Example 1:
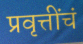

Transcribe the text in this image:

प्रवृत्तींचं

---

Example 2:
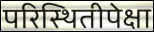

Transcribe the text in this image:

परिस्थितीपेक्षा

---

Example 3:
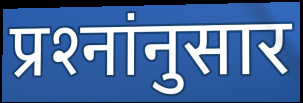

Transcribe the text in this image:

प्रश्नांनुसार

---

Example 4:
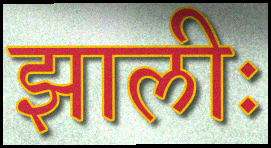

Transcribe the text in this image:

झालीः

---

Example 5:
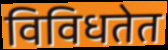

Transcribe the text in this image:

विविधतेत